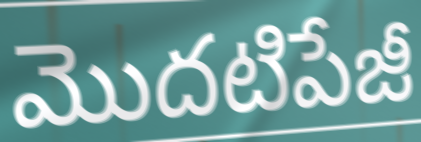
మొదటిపేజీ